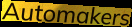
Automakers